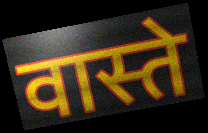
वास्ते